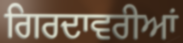
ਗਿਰਦਾਵਰੀਆਂ